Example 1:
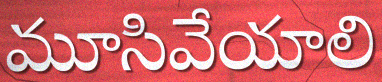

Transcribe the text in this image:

మూసివేయాలి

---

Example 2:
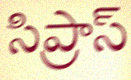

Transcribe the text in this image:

సిప్రాస్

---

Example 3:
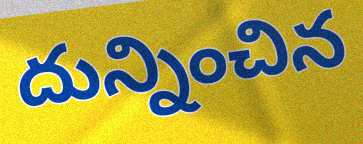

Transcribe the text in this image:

దున్నించిన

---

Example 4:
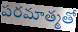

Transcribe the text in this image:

పరమాత్మతో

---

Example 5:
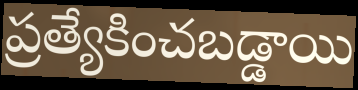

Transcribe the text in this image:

ప్రత్యేకించబడ్డాయి